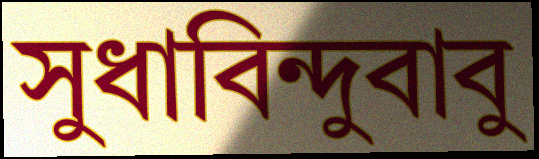
সুধাবিন্দুবাবু